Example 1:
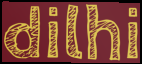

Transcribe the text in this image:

dilhi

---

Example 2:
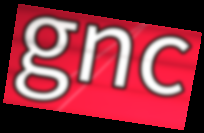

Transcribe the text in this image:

gnc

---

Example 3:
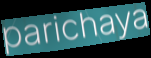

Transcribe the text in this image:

parichaya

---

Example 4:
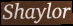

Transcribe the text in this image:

Shaylor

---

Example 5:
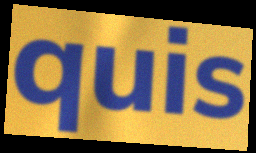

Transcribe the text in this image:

quis